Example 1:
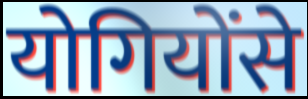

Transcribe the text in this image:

योगियोंसे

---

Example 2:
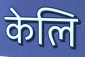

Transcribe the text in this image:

केलि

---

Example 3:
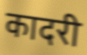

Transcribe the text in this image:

कादरी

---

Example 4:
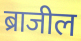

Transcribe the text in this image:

ब्राजील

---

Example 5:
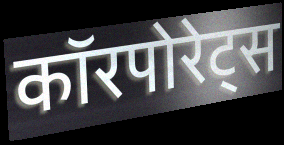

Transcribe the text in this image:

कॉरपोरेट्स